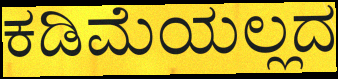
ಕಡಿಮೆಯಲ್ಲದ